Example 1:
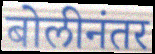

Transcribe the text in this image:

बोलीनंतर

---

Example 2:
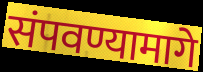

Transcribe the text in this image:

संपवण्यामागे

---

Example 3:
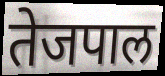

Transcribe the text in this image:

तेजपाल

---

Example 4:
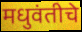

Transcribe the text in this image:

मधुवंतीचे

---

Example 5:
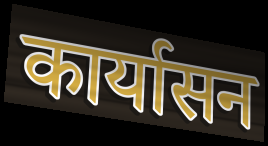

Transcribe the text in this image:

कार्यासन